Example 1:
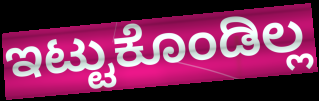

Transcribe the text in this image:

ಇಟ್ಟುಕೊಂಡಿಲ್ಲ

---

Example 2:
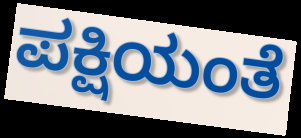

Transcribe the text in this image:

ಪಕ್ಷಿಯಂತೆ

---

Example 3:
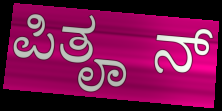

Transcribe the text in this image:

ಪಿತೄನ್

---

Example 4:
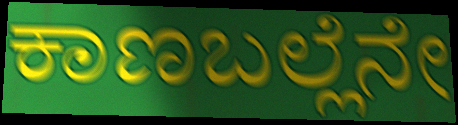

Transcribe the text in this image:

ಕಾಣಬಲ್ಲೆನೇ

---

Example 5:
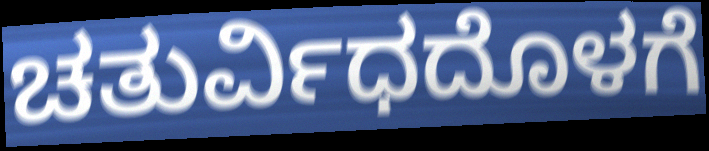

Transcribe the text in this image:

ಚತುರ್ವಿಧದೊಳಗೆ